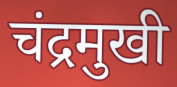
चंद्रमुखी